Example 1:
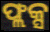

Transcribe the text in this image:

ଫ୍ଲକ୍ସ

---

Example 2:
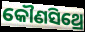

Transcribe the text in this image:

କୌଣସିଥ୍ରେ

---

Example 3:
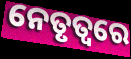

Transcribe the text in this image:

ନେତୃତ୍ଵରେ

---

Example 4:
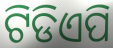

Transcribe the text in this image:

ଟିଡିଏପି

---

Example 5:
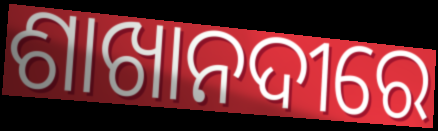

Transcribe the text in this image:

ଶାଖାନଦୀରେ